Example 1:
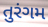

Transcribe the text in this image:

તુરંગમ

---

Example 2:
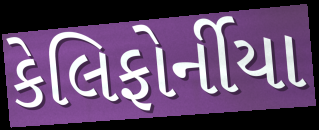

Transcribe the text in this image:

કેલિફોર્નીયા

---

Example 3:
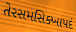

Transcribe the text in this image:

તેરસમસિક્ખાપદં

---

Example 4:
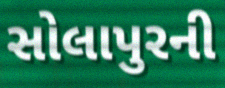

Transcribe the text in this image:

સોલાપુરની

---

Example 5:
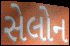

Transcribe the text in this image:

સેલોન